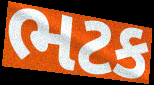
ભટક